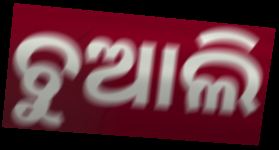
ଚୁଆଲି